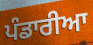
ਪੰਡਾਰੀਆ